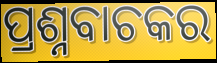
ପ୍ରଶ୍ନବାଚକର